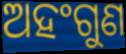
ଅହଂଗୁଣ